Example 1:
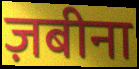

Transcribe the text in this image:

ज़बीना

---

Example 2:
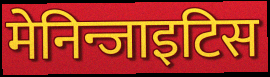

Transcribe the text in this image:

मेनिन्जाइटिस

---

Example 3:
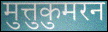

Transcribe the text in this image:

मुत्तुकुमरन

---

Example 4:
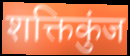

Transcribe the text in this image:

शक्तिकुंज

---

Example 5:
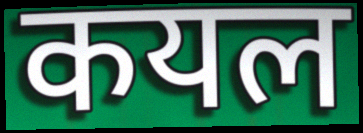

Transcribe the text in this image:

कयल